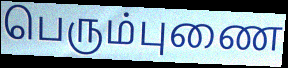
பெரும்புணை